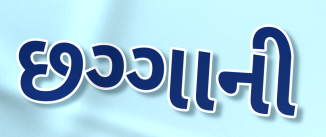
છગ્ગાની